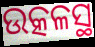
ଉତ୍କଳସ୍ଥ